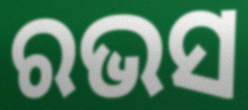
ରଭସ